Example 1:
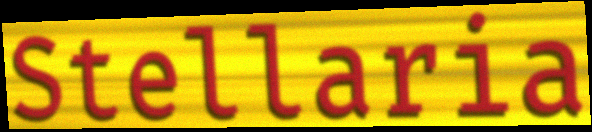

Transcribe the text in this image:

Stellaria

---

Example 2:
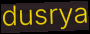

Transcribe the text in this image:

dusrya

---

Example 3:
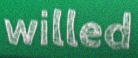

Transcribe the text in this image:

willed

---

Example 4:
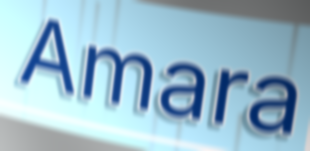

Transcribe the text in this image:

Amara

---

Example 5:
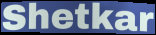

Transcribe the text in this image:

Shetkar